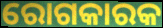
ରୋଗକାରକ